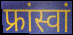
फ्रांस्वां